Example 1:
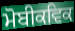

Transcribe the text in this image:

ਮੋਬੀਕਵਿਕ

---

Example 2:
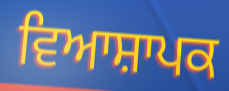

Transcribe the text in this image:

ਵਿਆਸ਼ਾਪਕ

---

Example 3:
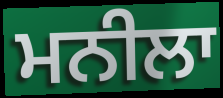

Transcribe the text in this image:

ਮਨੀਲਾ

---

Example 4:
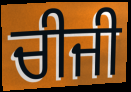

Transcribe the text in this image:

ਚੀਜੀ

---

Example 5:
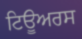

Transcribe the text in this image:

ਟਿਊਅਰਸ